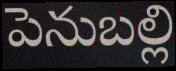
పెనుబల్లి